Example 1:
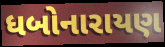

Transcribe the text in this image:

ધબોનારાયણ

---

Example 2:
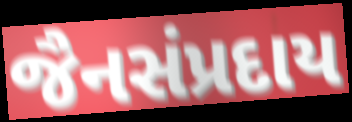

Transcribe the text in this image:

જૈનસંપ્રદાય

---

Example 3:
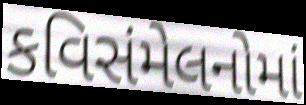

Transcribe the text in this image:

કવિસંમેલનોમાં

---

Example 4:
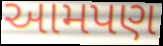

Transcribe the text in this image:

આમપણ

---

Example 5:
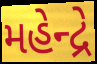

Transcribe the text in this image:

મહેન્દ્રે